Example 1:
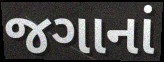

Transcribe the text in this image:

જગાનાં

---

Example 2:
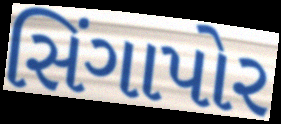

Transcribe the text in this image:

સિંગાપોર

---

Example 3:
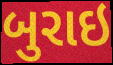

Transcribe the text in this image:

બુરાઇ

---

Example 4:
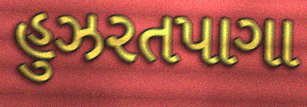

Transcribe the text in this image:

હુઝરતપાગા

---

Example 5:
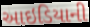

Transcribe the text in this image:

આઇડિયાની